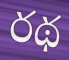
రథ